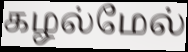
கழல்மேல்